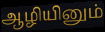
ஆழியினும்